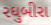
રઘુબીરા